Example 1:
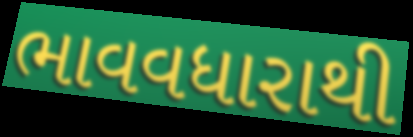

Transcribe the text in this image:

ભાવવધારાથી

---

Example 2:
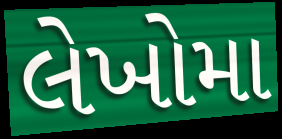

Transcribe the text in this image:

લેખોમા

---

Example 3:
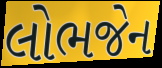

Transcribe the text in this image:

લોભજેન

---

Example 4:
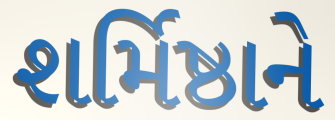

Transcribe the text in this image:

શર્મિષ્ઠાને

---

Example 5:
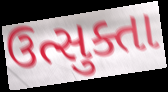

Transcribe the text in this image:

ઉત્સુક્તા